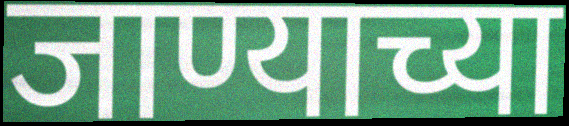
जाण्याच्या